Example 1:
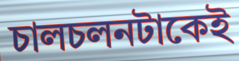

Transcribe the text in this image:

চালচলনটাকেই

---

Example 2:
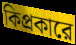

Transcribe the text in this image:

কিপ্রকারে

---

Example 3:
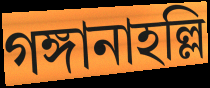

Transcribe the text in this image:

গঙ্গানাহল্লি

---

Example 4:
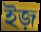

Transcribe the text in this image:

ইজ়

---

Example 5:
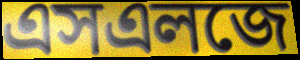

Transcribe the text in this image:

এসএলজে